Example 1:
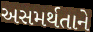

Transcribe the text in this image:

અસમર્થતાને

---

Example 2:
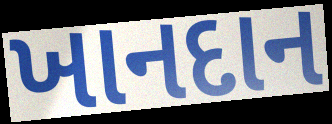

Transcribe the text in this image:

ખાનદાન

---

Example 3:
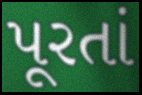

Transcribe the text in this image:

પૂરતાં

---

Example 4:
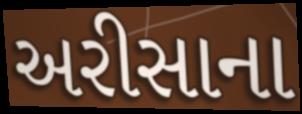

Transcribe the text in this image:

અરીસાના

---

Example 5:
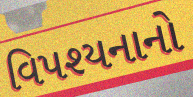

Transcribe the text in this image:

વિપશ્યનાનો